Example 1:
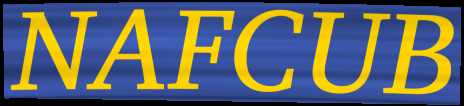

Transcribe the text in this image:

NAFCUB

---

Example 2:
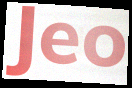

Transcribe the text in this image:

Jeo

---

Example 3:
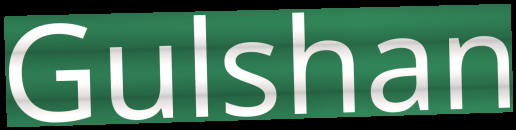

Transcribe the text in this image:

Gulshan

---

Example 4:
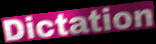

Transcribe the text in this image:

Dictation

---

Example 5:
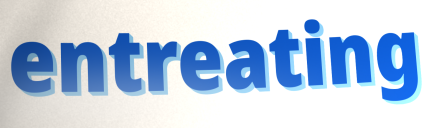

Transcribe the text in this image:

entreating